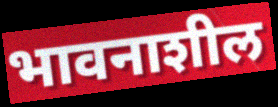
भावनाशील